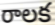
రాలక